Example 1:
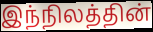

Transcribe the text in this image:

இந்நிலத்தின்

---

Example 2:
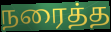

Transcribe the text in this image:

நரைத்த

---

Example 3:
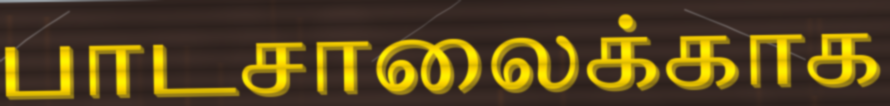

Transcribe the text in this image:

பாடசாலைக்காக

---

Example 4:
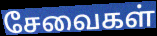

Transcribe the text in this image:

சேவைகள்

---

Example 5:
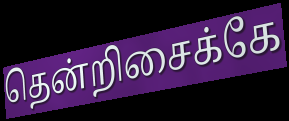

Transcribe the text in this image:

தென்றிசைக்கே